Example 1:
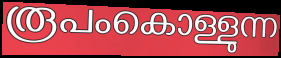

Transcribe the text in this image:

രൂപംകൊള്ളുന്ന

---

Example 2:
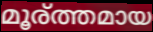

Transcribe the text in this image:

മൂര്ത്തമായ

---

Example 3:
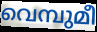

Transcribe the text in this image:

വെമ്പുമീ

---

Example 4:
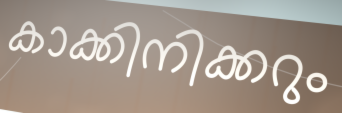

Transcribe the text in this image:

കാക്കിനിക്കറും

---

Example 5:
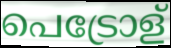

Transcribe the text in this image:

പെട്രോള്